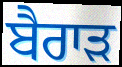
ਬੈਰਾੜ